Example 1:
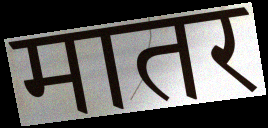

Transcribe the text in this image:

मातर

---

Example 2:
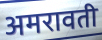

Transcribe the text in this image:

अमरावती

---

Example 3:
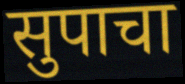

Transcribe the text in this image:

सुपाचा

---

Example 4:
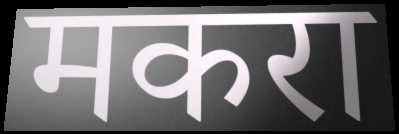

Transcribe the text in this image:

मकरा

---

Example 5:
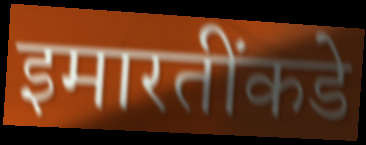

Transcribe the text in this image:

इमारतींकडे